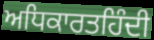
ਅਧਿਕਾਰਤਹਿੰਦੀ